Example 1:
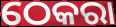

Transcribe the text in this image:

ଠେକରା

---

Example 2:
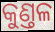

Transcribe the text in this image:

କୁଣ୍ତଳ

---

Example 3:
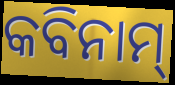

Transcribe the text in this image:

କବିନାମ୍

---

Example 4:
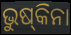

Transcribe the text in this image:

ଭୁଷ୍‌କିନା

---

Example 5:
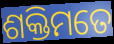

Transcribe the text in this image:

ଶକ୍ତିମତେ